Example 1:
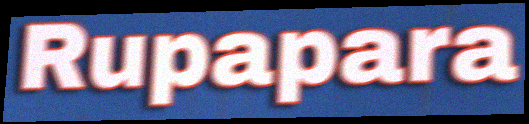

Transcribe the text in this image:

Rupapara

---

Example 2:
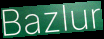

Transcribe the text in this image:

Bazlur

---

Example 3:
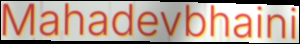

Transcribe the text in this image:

Mahadevbhaini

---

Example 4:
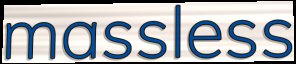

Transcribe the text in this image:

massless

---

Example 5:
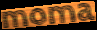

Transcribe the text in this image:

moma